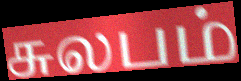
சுலபம்